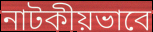
নাটকীয়ভাবে